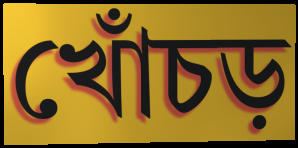
খোঁচড়